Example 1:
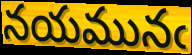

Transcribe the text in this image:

నయమునఁ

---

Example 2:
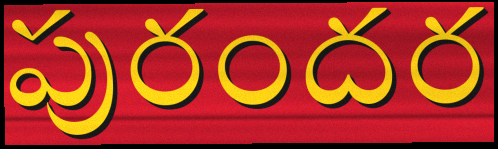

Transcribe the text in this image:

పురందర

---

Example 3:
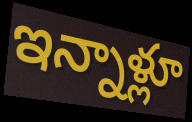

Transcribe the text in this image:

ఇన్నాళ్లూ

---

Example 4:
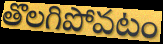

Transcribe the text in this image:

తొలగిపోవటం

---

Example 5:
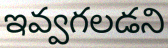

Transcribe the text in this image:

ఇవ్వగలడని